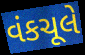
વંકચૂલે